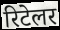
रिटेलर